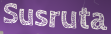
Susruta